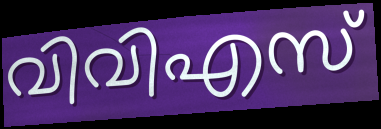
വിവിഎസ്